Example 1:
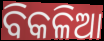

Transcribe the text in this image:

ବିକଳିଆ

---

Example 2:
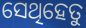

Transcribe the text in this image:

ସେଥିହେତୁ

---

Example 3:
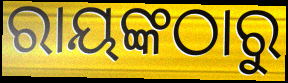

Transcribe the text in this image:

ରାୟଙ୍କଠାରୁ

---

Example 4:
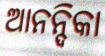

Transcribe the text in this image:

ଆନନ୍ଦିକା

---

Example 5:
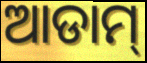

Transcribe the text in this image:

ଆଡାମ୍